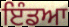
ਇੰਡਆ